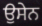
ਉਸੇਨ